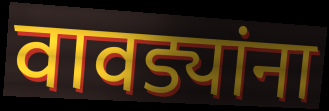
वावड्यांना